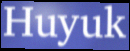
Huyuk